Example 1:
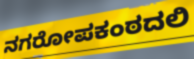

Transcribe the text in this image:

ನಗರೋಪಕಂಠದಲಿ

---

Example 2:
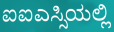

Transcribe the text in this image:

ಐಐಎಸ್ಸಿಯಲ್ಲಿ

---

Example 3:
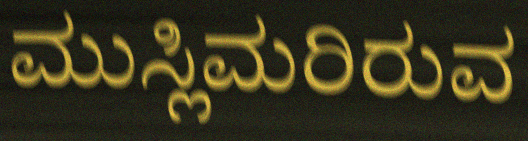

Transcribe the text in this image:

ಮುಸ್ಲಿಮರಿರುವ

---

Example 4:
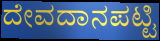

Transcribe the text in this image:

ದೇವದಾನಪಟ್ಟಿ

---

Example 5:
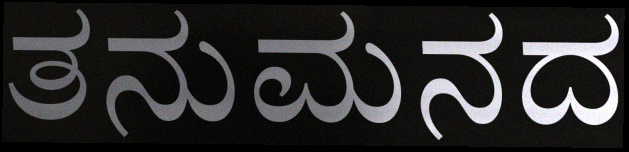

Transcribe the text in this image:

ತನುಮನದ